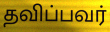
தவிப்பவர்